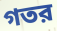
গতর